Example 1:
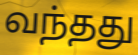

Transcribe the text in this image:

வந்தது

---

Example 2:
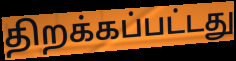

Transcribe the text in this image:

திறக்கப்பட்டது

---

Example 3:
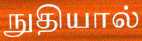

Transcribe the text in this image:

நுதியால்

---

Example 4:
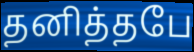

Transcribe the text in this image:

தனித்தபே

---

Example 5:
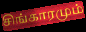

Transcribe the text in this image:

சிங்காரமும்